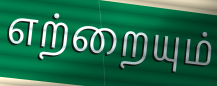
எற்றையும்